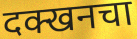
दक्खनचा